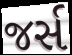
જર્સ